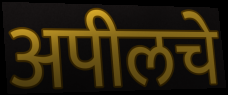
अपीलचे